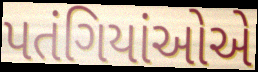
પતંગિયાંઓએ